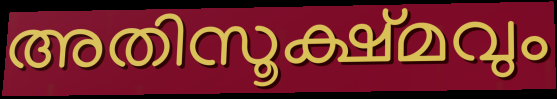
അതിസൂക്ഷ്മവും